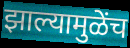
झाल्यामुळेंच